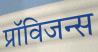
प्रॉविजन्स